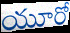
యూరో